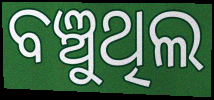
ବଞ୍ଚୁଥିଲ